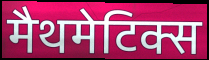
मैथमेटिक्स